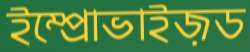
ইম্প্রোভাইজ়ড